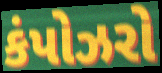
કંપોઝરો